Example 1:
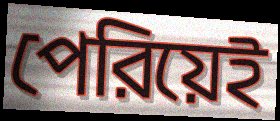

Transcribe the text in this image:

পেরিয়েই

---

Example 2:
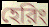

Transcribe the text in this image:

হেরিং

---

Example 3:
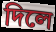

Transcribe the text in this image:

দিলে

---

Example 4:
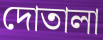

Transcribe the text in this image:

দোতালা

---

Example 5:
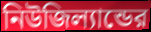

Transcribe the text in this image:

নিউজিল্যান্ডের